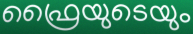
ഫ്രൈയുടെയും